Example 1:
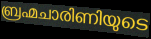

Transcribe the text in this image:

ബ്രഹ്മചാരിണിയുടെ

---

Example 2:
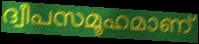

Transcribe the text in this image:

ദ്വീപസമൂഹമാണ്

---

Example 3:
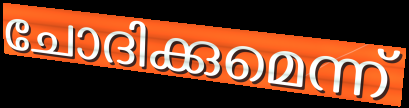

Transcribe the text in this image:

ചോദിക്കുമെന്ന്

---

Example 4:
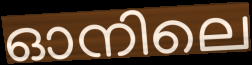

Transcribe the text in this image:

ഓനിലെ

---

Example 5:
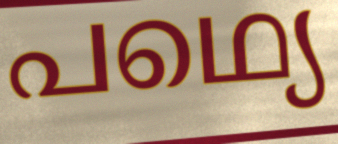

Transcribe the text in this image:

പഥ്യെ